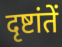
दृष्टांतें